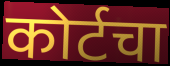
कोर्टचा